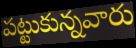
పట్టుకున్నవారు